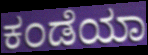
ಕಂಡೆಯಾ